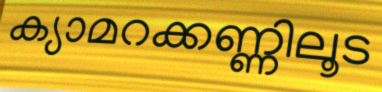
ക്യാമറക്കണ്ണിലൂട